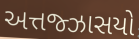
અત્તજ્ઝાસયો